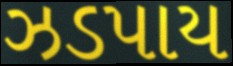
ઝડપાય